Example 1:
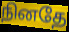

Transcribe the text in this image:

நினதே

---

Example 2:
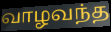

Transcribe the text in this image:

வாழவந்த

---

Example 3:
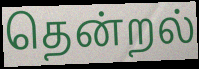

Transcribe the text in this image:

தென்றல்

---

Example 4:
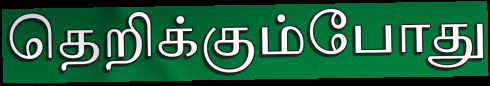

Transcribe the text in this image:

தெறிக்கும்போது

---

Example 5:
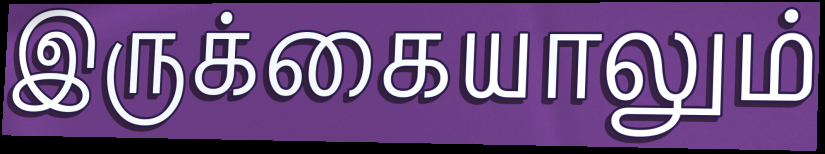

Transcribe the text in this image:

இருக்கையாலும்